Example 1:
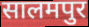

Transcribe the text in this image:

सालमपुर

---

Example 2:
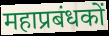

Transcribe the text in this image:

महाप्रबंधकों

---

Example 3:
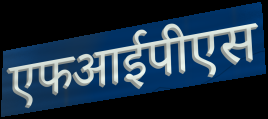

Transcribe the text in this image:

एफआईपीएस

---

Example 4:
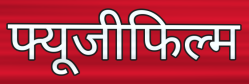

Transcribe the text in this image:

फ्यूजीफिल्म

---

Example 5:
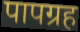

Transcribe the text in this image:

पापग्रह